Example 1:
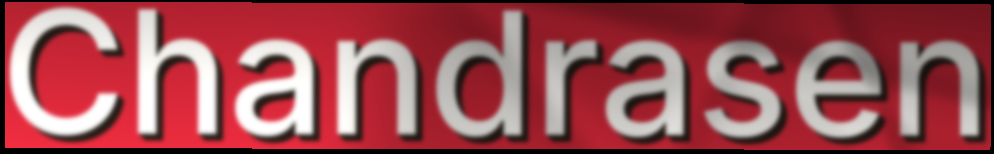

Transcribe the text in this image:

Chandrasen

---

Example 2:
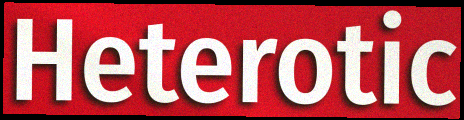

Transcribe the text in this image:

Heterotic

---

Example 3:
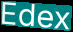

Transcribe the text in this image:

Edex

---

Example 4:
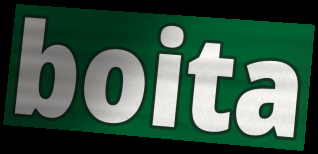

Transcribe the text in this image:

boita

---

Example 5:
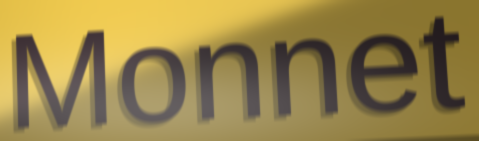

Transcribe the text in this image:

Monnet